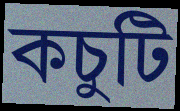
কচুটি